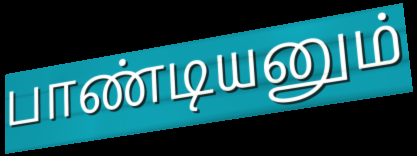
பாண்டியனும்